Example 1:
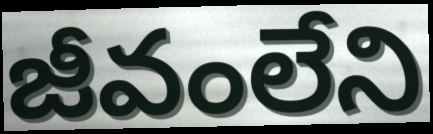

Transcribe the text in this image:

జీవంలేని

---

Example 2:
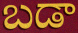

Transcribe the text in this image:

బడా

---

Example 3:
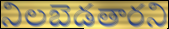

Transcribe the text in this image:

నిలబెడతారని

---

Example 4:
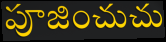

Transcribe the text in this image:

పూజించుచు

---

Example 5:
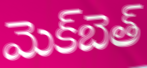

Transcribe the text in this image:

మెక్‌బెత్